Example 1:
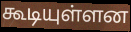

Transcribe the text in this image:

கூடியுள்ளன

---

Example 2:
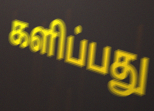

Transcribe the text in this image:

களிப்பது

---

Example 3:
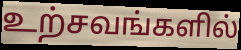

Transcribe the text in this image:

உற்சவங்களில்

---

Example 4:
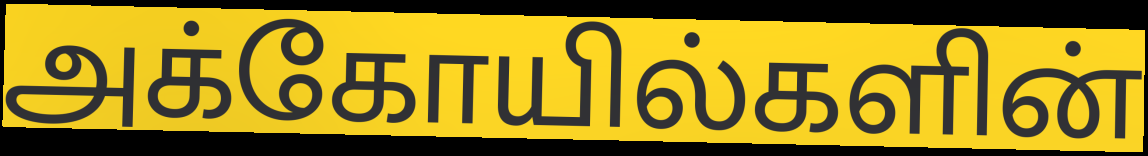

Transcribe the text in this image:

அக்கோயில்களின்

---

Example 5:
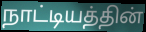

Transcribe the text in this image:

நாட்டியத்தின்